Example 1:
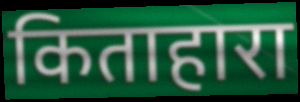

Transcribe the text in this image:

किताहारा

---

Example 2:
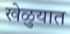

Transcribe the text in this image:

खेळुयात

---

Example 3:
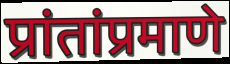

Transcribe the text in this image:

प्रांतांप्रमाणे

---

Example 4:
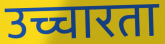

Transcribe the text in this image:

उच्चारता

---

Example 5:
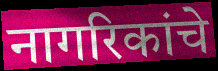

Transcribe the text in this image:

नागरिकांचे